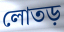
লোতড়